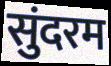
सुंदरम